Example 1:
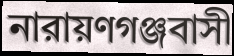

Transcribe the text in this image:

নারায়ণগঞ্জবাসী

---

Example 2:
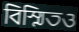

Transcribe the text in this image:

বিস্মিতও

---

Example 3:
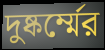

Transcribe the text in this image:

দুষ্কর্ম্মের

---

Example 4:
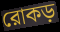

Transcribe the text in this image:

রোকড়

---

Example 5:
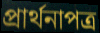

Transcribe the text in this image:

প্রার্থনাপত্র